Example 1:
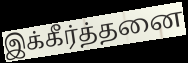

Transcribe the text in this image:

இக்கீர்த்தனை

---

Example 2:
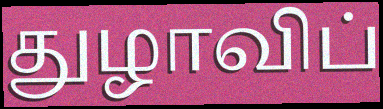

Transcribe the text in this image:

துழாவிப்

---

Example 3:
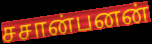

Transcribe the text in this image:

சசான்பனன்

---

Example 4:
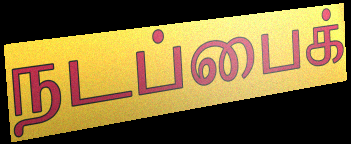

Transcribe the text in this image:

நடப்பைக்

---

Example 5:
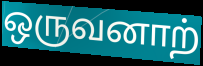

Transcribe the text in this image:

ஒருவனாற்